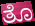
ತೊ